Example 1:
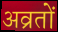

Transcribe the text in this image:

अव्रतों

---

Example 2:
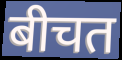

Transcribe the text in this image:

बीचत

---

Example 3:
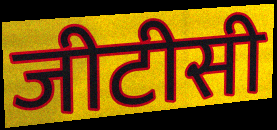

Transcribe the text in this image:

जीटीसी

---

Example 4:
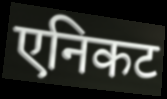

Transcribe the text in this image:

एनिकट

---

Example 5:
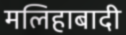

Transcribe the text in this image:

मलिहाबादी